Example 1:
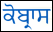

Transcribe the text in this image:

ਕੋਬ੍ਰਾਸ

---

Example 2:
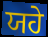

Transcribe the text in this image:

ਯਹੇ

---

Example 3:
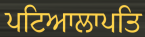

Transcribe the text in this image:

ਪਟਿਆਲਾਪਤਿ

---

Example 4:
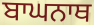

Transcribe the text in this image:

ਬਾਘਨਾਥ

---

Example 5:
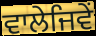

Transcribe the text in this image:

ਵਾਲੇਜਿਵੇਂ